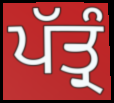
ਪੱਤ੍ਰੰ